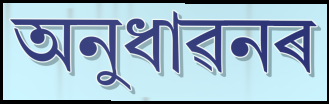
অনুধাৱনৰ